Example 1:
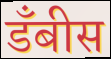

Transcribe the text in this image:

डॅंबीस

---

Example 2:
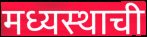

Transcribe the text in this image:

मध्यस्थाची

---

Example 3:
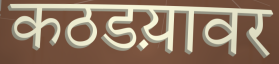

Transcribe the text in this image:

कठडय़ावर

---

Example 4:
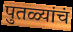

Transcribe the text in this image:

पुतळ्यांचं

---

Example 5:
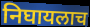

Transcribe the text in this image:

निघायलाच